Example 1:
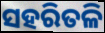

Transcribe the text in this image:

ସହରିତଳି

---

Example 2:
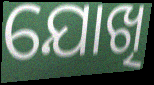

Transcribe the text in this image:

ଯୋଖି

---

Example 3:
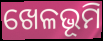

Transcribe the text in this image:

ଖେଳଭୂମି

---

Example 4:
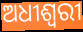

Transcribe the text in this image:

ଅଧୀଶ୍ୱରୀ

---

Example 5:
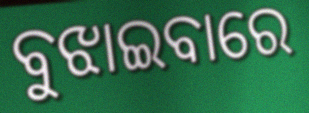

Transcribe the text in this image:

ବୁଝାଇବାରେ